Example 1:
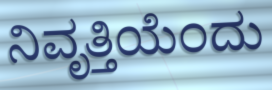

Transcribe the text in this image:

ನಿವೃತ್ತಿಯೆಂದು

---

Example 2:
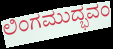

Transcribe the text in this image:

ಲಿಂಗಮುದ್ಭವಂ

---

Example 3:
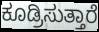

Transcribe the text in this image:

ಕೂಡ್ರಿಸುತ್ತಾರೆ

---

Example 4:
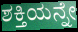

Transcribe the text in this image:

ಶಕ್ತಿಯನ್ನೇ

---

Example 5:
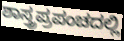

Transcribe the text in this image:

ಶಾಸ್ತ್ರಪ್ರಪಂಚದಲ್ಲಿ